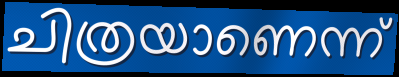
ചിത്രയാണെന്ന്